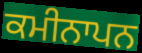
ਕਮੀਨਾਪਨ